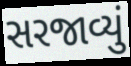
સરજાવ્યું